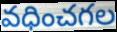
వధించగల